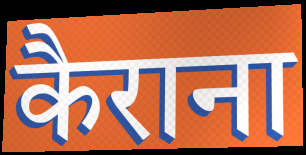
कैराना